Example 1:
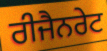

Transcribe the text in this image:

ਰੀਜੈਨਰੇਟ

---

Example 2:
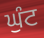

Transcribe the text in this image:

ਘੁੰਟ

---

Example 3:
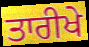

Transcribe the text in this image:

ਤਾਰੀਖੇ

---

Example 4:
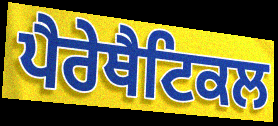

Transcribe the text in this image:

ਪੈਰੇਥੈਟਿਕਲ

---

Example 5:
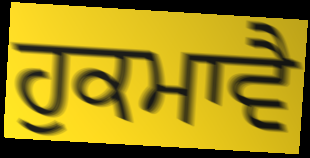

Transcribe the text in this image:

ਹੁਕਮਾਵੈ